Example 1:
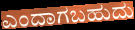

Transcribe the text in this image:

ಎಂದಾಗಬಹುದು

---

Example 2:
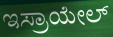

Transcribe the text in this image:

ಇಸ್ರಾಯೇಲ್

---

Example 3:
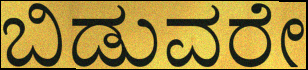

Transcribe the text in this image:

ಬಿಡುವರೇ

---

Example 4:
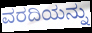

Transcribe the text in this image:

ವರದಿಯನ್ನು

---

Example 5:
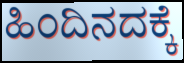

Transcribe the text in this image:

ಹಿಂದಿನದಕ್ಕೆ